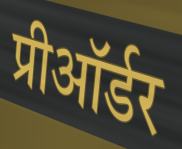
प्रीऑर्डर